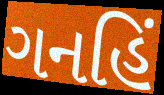
ગનહિં